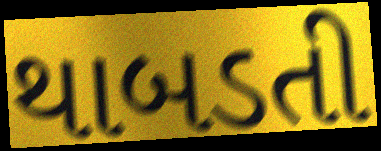
થાબડતી